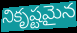
నికృష్టమైన